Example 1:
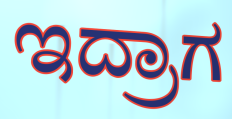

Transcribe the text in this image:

ಇದ್ರಾಗ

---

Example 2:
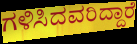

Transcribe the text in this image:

ಗಳಿಸಿದವರಿದ್ದಾರೆ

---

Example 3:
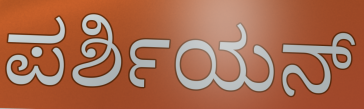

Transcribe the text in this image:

ಪರ್ಶಿಯನ್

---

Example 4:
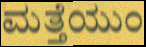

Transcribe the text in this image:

ಮತ್ತೆಯುಂ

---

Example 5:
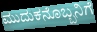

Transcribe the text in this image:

ಮುದುಕನೊಬ್ಬನಿಗೆ